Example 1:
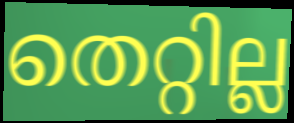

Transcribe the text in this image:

തെറ്റില്ല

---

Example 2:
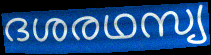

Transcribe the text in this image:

ദശരഥസ്യ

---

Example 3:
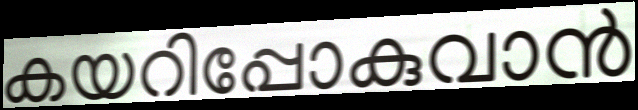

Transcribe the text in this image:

കയറിപ്പോകുവാൻ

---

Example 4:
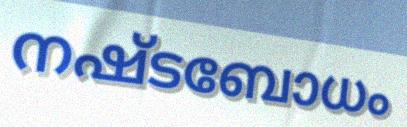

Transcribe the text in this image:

നഷ്ടബോധം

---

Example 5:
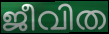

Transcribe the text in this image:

ജീവിത